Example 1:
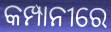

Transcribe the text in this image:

କମ୍ପାନୀରେ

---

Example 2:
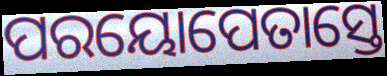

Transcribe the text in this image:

ପରୟୋପେତାସ୍ତେ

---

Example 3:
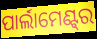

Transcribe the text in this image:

ପାର୍ଲାମେଣ୍ଟ୍‌ର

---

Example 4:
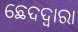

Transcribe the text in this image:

ଛେଦଦ୍ୱାରା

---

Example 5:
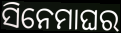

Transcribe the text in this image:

ସିନେମାଘର